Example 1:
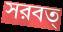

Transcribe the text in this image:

সরবত্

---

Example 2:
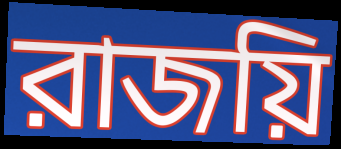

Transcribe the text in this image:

রাজয়ি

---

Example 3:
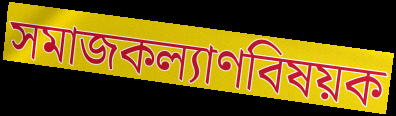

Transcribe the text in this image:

সমাজকল্যাণবিষয়ক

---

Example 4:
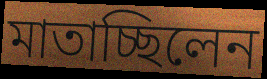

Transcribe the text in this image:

মাতাচ্ছিলেন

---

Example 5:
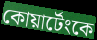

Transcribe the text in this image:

কোয়ার্টেংকে